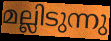
മല്ലിടുന്നു